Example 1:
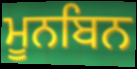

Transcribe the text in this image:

ਮੂਨਬਿਨ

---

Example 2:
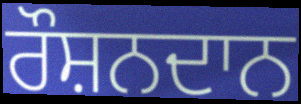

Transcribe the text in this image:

ਰੌਸ਼ਨਦਾਨ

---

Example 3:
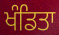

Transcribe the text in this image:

ਖੰਡਿਤਾ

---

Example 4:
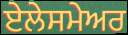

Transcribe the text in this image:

ਏਲੇਸਮੇਅਰ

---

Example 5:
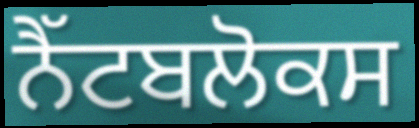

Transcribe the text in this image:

ਨੈੱਟਬਲੋਕਸ